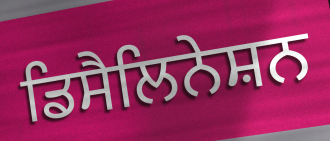
ਡਿਸੈਲਿਨੇਸ਼ਨ